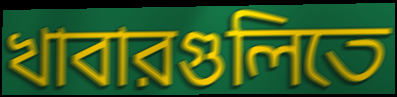
খাবারগুলিতে